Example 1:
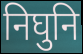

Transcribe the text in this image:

निघुनि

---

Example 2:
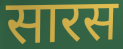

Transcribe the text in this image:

सारस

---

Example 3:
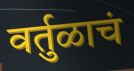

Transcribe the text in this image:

वर्तुळाचं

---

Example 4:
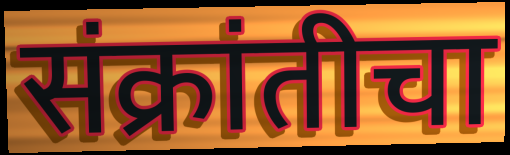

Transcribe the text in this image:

संक्रांतीचा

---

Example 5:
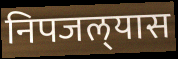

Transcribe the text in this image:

निपजल्यास